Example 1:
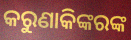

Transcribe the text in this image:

କରୁଣାକିଙ୍କରଙ୍କ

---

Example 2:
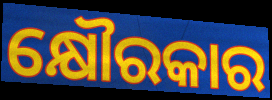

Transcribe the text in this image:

କ୍ଷୌରକାର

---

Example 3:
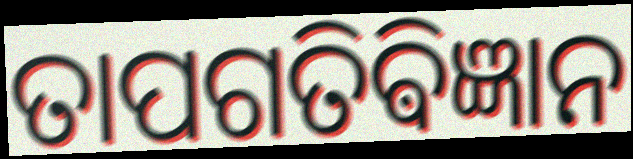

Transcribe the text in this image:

ତାପଗତିଵିଜ୍ଞାନ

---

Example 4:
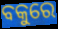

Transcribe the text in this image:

ବକୁରେ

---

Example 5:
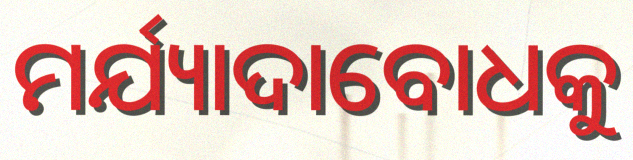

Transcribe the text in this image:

ମର୍ଯ୍ୟାଦାବୋଧକୁ